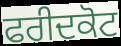
ਫਰੀਦਕੋਟ